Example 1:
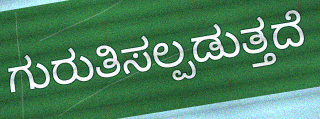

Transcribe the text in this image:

ಗುರುತಿಸಲ್ಪಡುತ್ತದೆ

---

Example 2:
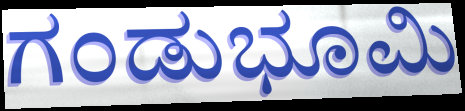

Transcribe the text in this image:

ಗಂಡುಭೂಮಿ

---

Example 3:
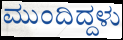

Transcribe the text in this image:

ಮುಂದಿದ್ದಳು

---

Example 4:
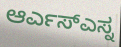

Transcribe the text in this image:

ಆರ್ಎಸ್ಎಸ್ನ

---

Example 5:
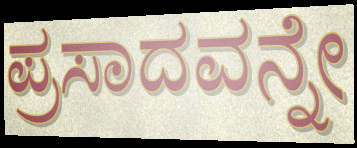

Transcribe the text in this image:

ಪ್ರಸಾದವನ್ನೇ